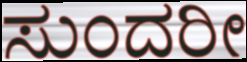
ಸುಂದರೀ